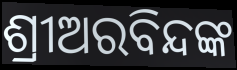
ଶ୍ରୀଅରବିନ୍ଦଙ୍କ